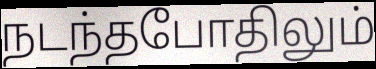
நடந்தபோதிலும்